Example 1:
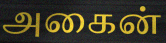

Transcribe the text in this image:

அகைன்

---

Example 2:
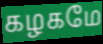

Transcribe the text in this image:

கழகமே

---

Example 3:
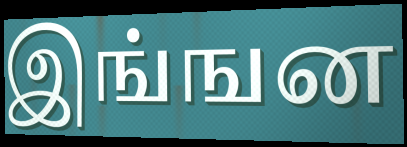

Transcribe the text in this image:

இங்ஙன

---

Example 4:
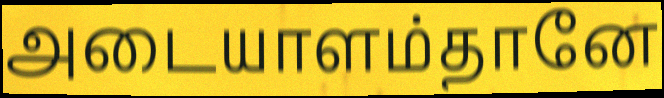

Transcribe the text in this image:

அடையாளம்தானே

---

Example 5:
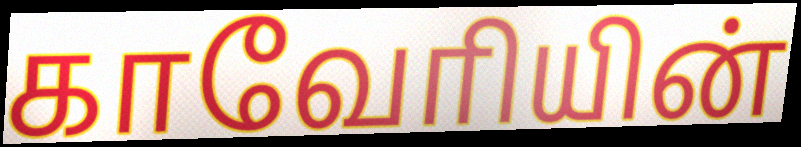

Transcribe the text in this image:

காவேரியின்